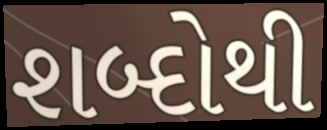
શબ્દોથી